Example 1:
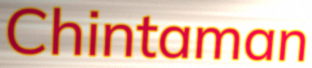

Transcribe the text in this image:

Chintaman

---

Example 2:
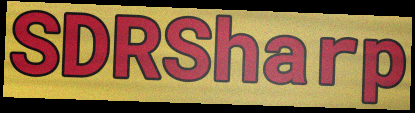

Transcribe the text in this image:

SDRSharp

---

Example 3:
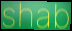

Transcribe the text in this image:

shab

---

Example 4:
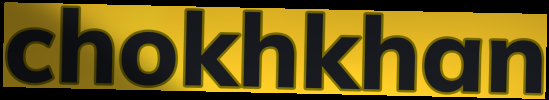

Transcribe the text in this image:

chokhkhan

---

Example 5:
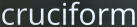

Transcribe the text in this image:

cruciform